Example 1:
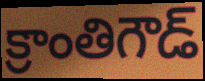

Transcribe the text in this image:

క్రాంతిగౌడ్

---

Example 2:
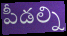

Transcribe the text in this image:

పీడల్ని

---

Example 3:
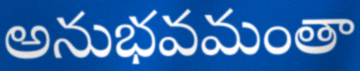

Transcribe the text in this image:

అనుభవమంతా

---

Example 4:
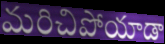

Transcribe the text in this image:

మరిచిపోయాడా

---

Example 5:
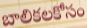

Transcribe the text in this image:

బాలికలకోసం